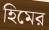
হিমের